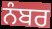
ਨੰਬਰ